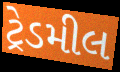
ટ્રેડમીલ